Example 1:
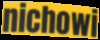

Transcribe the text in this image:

nichowi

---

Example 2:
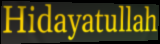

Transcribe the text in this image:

Hidayatullah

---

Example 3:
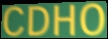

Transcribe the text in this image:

CDHO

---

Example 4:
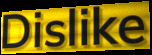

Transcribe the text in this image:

Dislike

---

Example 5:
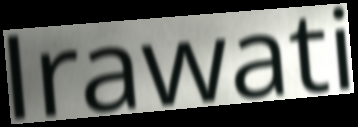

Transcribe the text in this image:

Irawati